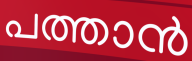
പത്താൻ